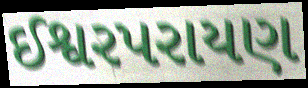
ઈશ્વરપરાયણ